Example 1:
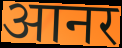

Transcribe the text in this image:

आनर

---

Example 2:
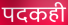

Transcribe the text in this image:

पदकही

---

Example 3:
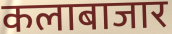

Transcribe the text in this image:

कलाबाजार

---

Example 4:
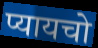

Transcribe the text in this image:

प्यायचो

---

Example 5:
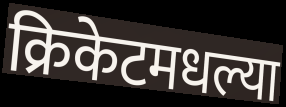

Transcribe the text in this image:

क्रिकेटमधल्या